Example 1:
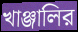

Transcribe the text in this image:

খাঞ্জালির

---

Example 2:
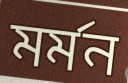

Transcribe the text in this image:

মর্মন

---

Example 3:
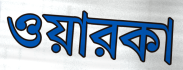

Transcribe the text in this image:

ওয়ারকা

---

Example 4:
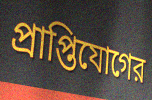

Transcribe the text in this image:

প্রাপ্তিযোগের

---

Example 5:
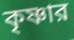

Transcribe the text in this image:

কৃষ্ণার